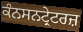
ਕੰਨਸਨਟ੍ਰੇਟਰਜ਼